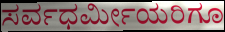
ಸರ್ವಧರ್ಮೀಯರಿಗೂ